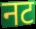
नट